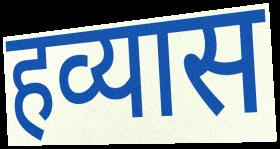
हव्यास